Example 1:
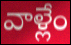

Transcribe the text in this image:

వాళ్లేం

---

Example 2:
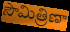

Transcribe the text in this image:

సౌమిత్రిణా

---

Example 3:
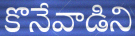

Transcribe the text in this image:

కొనేవాడిని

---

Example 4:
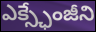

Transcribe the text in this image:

ఎక్స్ఛేంజీని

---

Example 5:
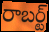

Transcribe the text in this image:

రాబర్ట్